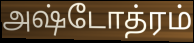
அஷ்டோத்ரம்